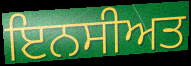
ਇਨਸੀਅਤ